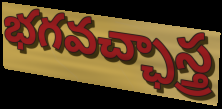
భగవచ్ఛాస్త్ర